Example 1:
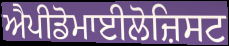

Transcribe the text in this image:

ਐਪੀਡੋਮਾਈਲੋਜ਼ਿਸਟ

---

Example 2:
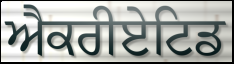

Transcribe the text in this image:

ਐਕਰੀਏਟਿਡ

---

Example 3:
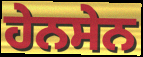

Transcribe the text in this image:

ਹੇਨਸੇਨ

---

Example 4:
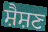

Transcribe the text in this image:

ਸ਼ੈਸ਼ਣ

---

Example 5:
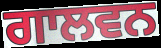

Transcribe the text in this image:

ਗਾਲਵਨ